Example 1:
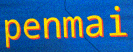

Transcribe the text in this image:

penmai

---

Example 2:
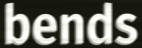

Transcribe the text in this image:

bends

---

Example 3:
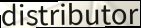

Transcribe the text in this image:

distributor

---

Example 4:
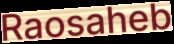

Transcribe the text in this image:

Raosaheb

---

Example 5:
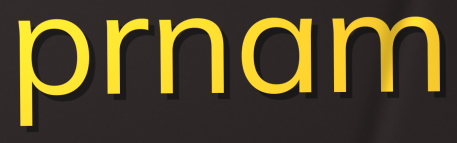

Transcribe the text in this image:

prnam